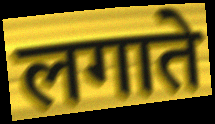
लगाते